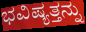
ಭವಿಷ್ಯತ್ತನ್ನು